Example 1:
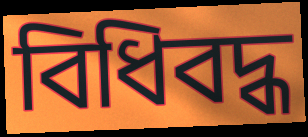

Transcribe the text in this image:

বিধিবদ্ধ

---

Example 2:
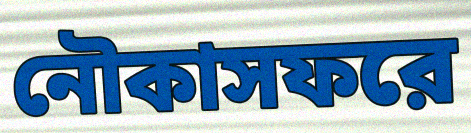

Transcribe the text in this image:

নৌকাসফরে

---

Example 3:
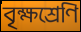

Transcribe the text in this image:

বৃক্ষশ্রেণি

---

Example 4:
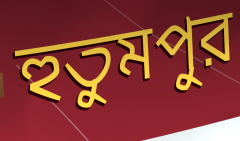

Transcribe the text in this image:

হুতুমপুর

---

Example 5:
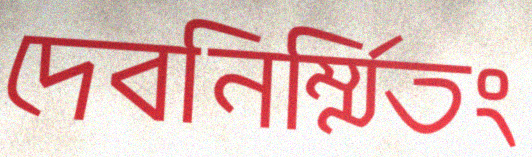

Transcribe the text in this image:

দেবনির্ম্মিতং